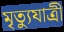
মৃত্যুযাত্রী